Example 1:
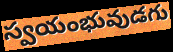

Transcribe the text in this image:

స్వయంభువుడగు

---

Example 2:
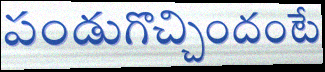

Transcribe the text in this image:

పండుగొచ్చిందంటే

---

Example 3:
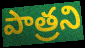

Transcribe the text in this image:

పాత్రని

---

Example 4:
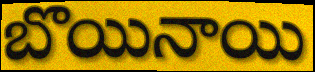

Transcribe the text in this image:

బొయినాయి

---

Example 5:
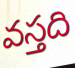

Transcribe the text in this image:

వస్తది